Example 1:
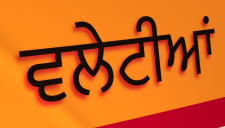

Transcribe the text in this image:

ਵਲੇਟੀਆਂ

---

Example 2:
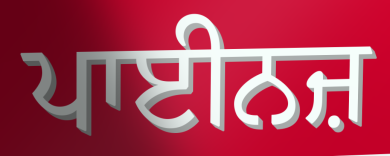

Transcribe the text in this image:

ਪਾਈਨਜ਼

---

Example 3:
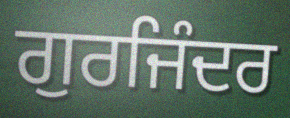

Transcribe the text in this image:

ਗੁਰਜਿੰਦਰ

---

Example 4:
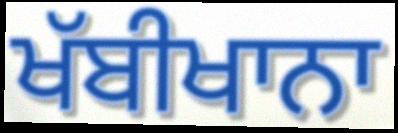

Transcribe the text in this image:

ਖੱਬੀਖਾਨਾ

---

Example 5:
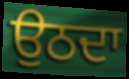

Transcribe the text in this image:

ਉਠਦਾ